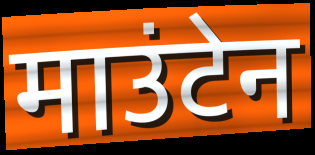
माउंटेन